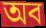
অব